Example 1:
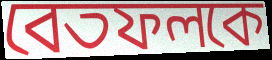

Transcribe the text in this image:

বেতফলকে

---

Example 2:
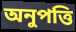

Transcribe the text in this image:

অনুপত্তি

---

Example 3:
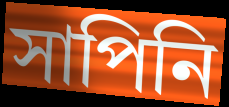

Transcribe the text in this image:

সাপিনি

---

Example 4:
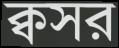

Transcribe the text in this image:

ক্বসর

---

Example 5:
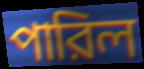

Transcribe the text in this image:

পারিল